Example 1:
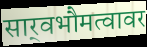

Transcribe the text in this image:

सार्वभौमत्वावर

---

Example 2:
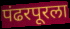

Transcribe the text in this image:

पंढरपूरला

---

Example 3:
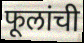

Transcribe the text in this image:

फूलांची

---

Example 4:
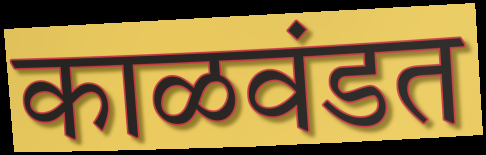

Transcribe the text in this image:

काळवंडत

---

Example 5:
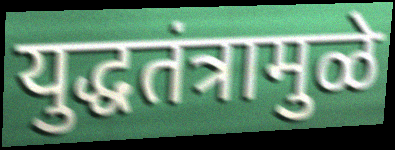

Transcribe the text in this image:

युद्धतंत्रामुळे